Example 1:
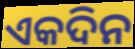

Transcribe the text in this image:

ଏକଦିନ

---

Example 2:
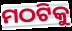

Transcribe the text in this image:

ମଠଟିକୁ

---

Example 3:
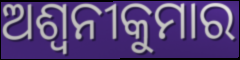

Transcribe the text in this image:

ଅଶ୍ୱନୀକୁମାର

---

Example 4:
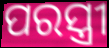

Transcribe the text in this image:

ପରସ୍ତ୍ରୀ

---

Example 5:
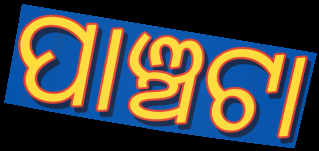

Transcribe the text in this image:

ପାଞ୍ଚଟା